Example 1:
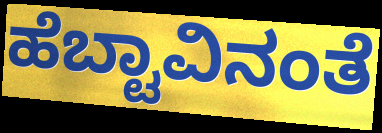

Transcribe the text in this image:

ಹೆಬ್ಟಾವಿನಂತೆ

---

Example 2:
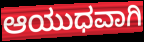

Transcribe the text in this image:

ಆಯುಧವಾಗಿ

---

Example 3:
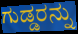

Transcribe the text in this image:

ಗುಡ್ಡರನ್ನು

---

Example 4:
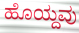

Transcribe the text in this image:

ಹೊಯ್ದವು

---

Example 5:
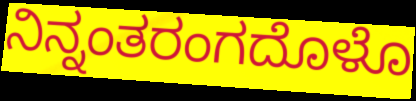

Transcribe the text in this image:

ನಿನ್ನಂತರಂಗದೊಳೊ